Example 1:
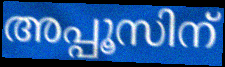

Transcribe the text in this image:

അപ്പൂസിന്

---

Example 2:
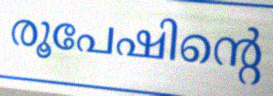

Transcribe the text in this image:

രൂപേഷിന്റെ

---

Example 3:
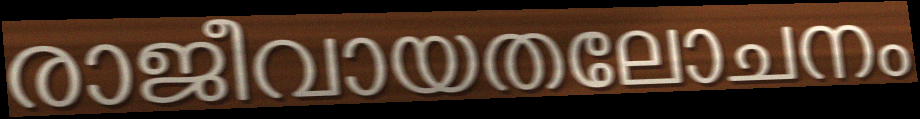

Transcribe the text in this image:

രാജീവായതലോചനം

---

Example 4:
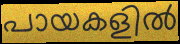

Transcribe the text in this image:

പായകളിൽ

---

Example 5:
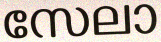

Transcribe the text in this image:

സേലാ